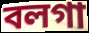
বলগা